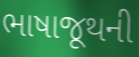
ભાષાજૂથની